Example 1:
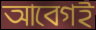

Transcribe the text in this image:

আবেগই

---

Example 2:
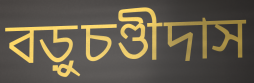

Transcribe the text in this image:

বড়ুচণ্ডীদাস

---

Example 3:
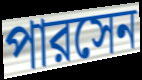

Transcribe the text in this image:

পারসেন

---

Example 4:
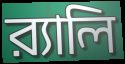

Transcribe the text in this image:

র‍্যালি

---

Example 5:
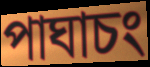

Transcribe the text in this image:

পাঘাচং